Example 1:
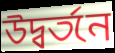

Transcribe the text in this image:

উদ্বর্তনে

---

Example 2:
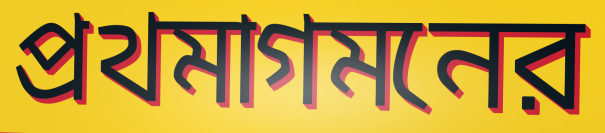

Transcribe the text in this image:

প্রথমাগমনের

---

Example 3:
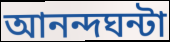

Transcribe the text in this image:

আনন্দঘন্টা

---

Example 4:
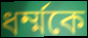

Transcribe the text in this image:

ধর্ম্মকে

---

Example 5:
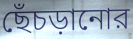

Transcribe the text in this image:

ছেঁচড়ানোর